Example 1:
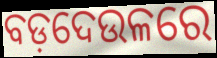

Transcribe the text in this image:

ବଡ଼ଦେଉଳରେ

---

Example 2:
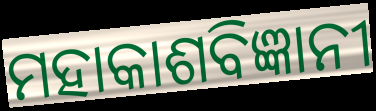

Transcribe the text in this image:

ମହାକାଶବିଜ୍ଞାନୀ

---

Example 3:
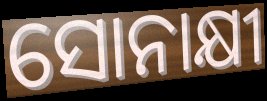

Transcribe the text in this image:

ସୋନାକ୍ଷୀ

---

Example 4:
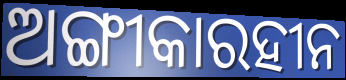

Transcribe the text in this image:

ଅଙ୍ଗୀକାରହୀନ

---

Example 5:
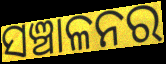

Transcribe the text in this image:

ସଞ୍ଚାଳନର